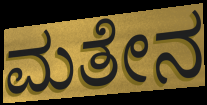
ಮತೇನ